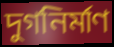
দুর্গনির্মাণ